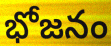
భోజనం